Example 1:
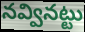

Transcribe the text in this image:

నవ్వినట్టు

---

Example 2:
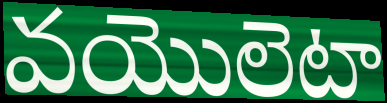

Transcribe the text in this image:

వయొలెటా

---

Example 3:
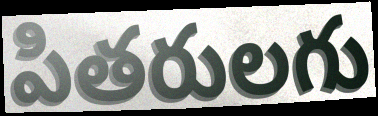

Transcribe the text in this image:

పితరులగు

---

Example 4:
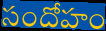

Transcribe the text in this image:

సందోహం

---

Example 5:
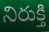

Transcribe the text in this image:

నిరుక్తి